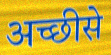
अच्छीसे